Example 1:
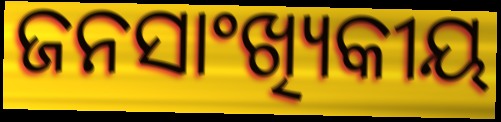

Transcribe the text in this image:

ଜନସାଂଖ୍ୟିକୀୟ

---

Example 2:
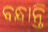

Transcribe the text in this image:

ବନ୍ଧାନ୍ତି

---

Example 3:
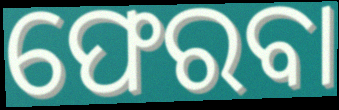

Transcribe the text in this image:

ଫେରବା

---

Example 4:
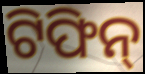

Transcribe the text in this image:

ଟିଫିନ୍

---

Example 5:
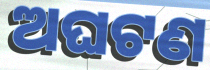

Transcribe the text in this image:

ଅଘଟଣ